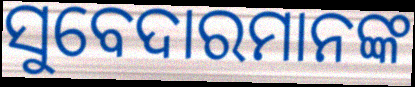
ସୁବେଦାରମାନଙ୍କ